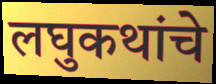
लघुकथांचे